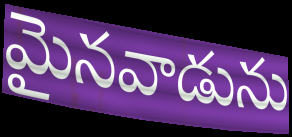
మైనవాడును